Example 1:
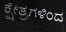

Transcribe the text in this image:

ಕ್ಷೇತ್ರಗಳಿಂದ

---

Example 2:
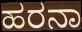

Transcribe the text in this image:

ಹರನಾ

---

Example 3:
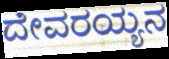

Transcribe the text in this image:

ದೇವರಯ್ಯನ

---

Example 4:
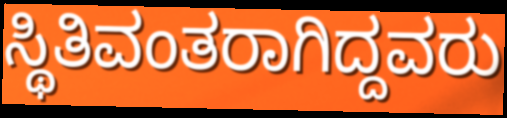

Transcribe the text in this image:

ಸ್ಥಿತಿವಂತರಾಗಿದ್ದವರು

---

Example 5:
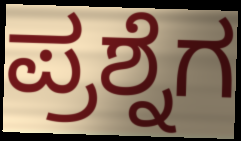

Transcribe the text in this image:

ಪ್ರಶ್ನೆಗ